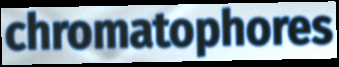
chromatophores